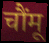
चौंमू